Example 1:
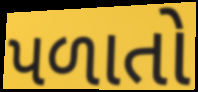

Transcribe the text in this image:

પળાતો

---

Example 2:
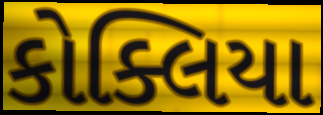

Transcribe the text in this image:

કોક્લિયા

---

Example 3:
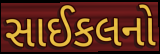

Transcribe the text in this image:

સાઈકલનો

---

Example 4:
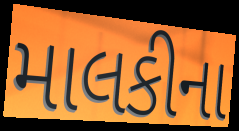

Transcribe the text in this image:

માલકીના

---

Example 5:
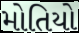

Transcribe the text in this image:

મોતિયો